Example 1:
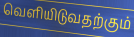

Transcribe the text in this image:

வெளியிடுவதற்கும்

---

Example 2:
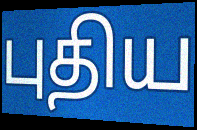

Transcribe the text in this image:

புதிய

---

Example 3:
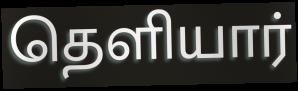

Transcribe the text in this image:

தெளியார்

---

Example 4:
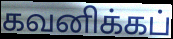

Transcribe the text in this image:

கவனிக்கப்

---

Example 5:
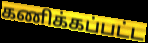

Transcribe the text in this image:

கணிக்கப்பட்ட